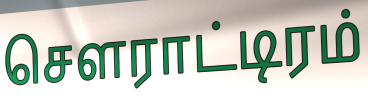
சௌராட்டிரம்